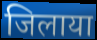
जिलाया